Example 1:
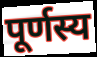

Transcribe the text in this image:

पूर्णस्य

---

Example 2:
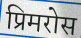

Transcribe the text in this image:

प्रिमरोस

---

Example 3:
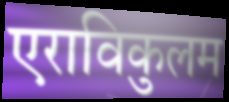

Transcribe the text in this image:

एराविकुलम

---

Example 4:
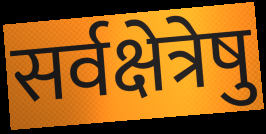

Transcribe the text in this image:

सर्वक्षेत्रेषु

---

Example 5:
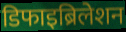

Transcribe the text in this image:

डिफाइब्रिलेशन